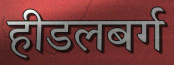
हीडलबर्ग